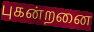
புகன்றனை